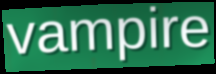
vampire